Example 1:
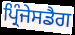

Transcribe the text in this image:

ਪ੍ਰਿੰਜੇਸਡੈਗ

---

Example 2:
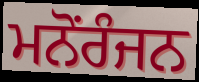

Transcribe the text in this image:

ਮਨੋਂਰੰਜਨ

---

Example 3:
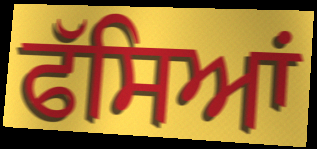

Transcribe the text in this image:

ਫੱਸਿਆਂ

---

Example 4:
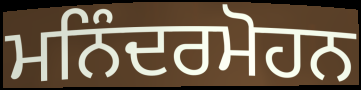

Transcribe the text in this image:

ਮਨਿੰਦਰਮੋਹਨ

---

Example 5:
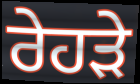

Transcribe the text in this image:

ਰੇਹੜੇ